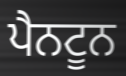
ਪੈਨਟੂਨ